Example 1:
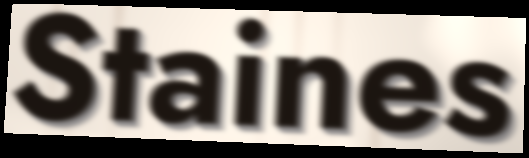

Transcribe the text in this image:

Staines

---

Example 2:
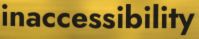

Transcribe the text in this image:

inaccessibility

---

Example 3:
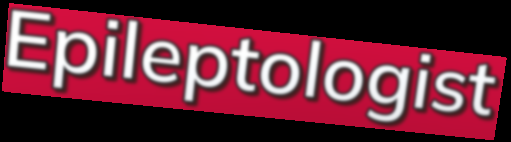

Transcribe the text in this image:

Epileptologist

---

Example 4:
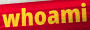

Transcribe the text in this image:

whoami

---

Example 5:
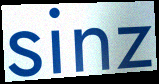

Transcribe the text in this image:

sinz